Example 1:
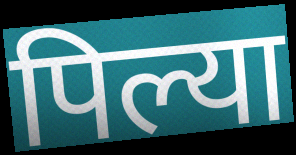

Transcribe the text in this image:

पिल्या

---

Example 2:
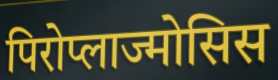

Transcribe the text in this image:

पिरोप्लाज्मोसिस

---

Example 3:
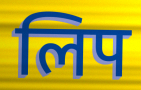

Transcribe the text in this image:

लिप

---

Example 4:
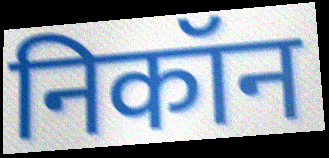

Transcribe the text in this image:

निकॉन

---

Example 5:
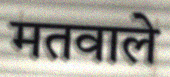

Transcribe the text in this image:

मतवाले